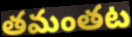
తమంతట